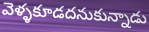
వెళ్ళకూడదనుకున్నాడు